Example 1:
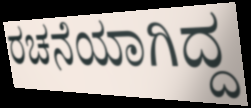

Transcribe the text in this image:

ರಚನೆಯಾಗಿದ್ದ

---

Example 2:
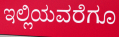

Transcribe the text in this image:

ಇಲ್ಲಿಯವರೆಗೂ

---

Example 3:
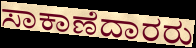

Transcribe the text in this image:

ಸಾಕಾಣೆದಾರರು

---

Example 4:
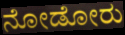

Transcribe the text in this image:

ನೋಡೋರು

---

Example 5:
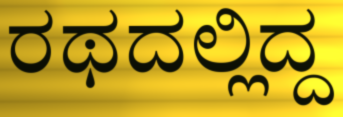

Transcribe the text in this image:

ರಥದಲ್ಲಿದ್ದ